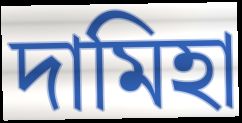
দামিহা